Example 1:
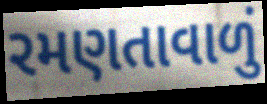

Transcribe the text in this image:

રમણતાવાળું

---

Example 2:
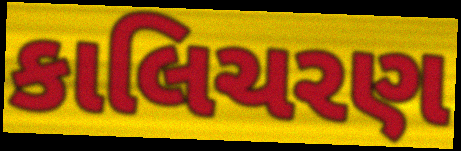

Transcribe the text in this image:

કાલિચરણ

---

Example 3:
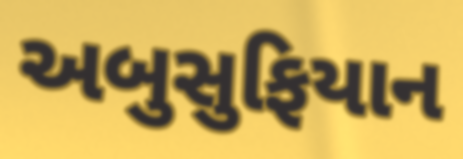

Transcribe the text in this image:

અબુસુફિયાન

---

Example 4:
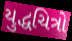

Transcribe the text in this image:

યુદ્ધચિત્રો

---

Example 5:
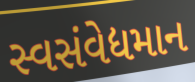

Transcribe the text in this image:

સ્વસંવેદ્યમાન